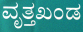
ವೃತ್ತಖಂಡ